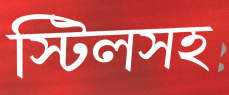
স্টিলসহ